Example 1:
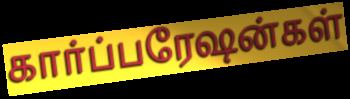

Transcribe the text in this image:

கார்ப்பரேஷன்கள்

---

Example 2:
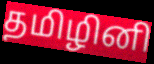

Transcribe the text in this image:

தமிழினி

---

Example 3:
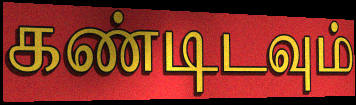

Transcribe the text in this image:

கண்டிடவும்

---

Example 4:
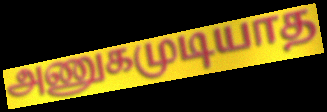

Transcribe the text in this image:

அணுகமுடியாத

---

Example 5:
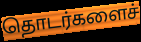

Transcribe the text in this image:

தொடர்களைச்